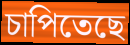
চাপিতেছে